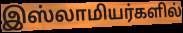
இஸ்லாமியர்களில்